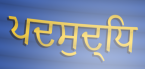
ਪਦਸੁਦ੍ਧਿ